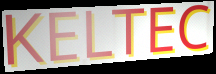
KELTEC